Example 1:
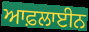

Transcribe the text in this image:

ਆਫ਼ਲਾਈਨ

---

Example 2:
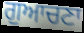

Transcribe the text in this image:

ਗੁਆਚਣਾ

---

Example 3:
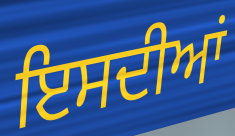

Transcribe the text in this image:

ਇਸਦੀਆਂ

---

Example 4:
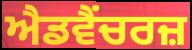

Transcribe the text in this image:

ਐਡਵੈਂਚਰਜ਼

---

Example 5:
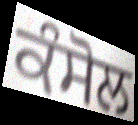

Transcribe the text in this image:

ਕੰਸੋਲ